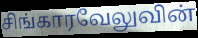
சிங்காரவேலுவின்